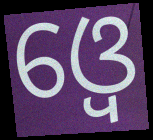
ଓ୍ବେ